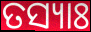
ତସ୍ୟାଃ